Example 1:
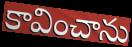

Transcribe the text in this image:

కావించాను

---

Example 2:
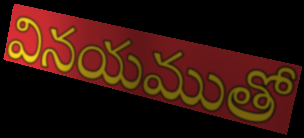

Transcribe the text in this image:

వినయముతో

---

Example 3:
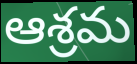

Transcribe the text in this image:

ఆశ్రమ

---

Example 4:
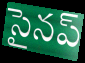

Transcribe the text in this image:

సైనప్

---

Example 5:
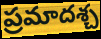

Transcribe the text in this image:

ప్రమాదశ్చ